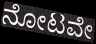
ನೋಟವೇ